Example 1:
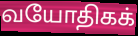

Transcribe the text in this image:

வயோதிகக்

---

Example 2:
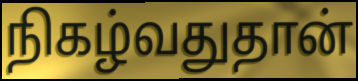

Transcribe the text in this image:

நிகழ்வதுதான்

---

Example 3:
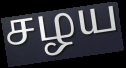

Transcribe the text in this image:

சழய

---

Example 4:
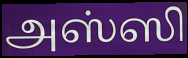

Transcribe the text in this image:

அஸ்ஸி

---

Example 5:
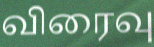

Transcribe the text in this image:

விரைவு